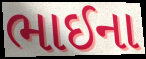
ભાઈના